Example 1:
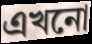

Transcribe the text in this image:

এখনো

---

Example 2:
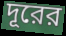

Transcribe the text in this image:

দূরের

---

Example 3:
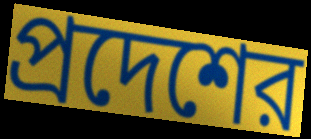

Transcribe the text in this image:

প্রদেশের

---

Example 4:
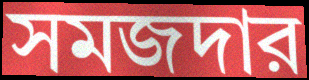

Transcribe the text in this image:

সমজদার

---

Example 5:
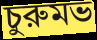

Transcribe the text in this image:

চুরুমভ